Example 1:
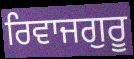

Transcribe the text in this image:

ਰਿਵਾਜਗੁਰੂ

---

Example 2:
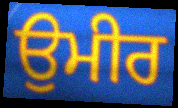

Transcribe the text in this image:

ਉਮੀਰ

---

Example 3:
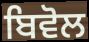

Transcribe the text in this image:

ਬਿਵੋਲ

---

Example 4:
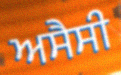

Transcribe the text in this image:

ਅਸੈਸੀ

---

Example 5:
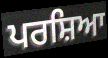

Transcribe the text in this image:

ਪਰਸ਼ਿਆ